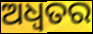
ଅଧ୍ଵତର